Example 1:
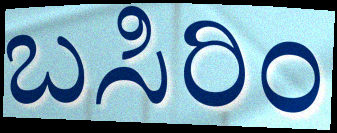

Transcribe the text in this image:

ಬಸಿರಿಂ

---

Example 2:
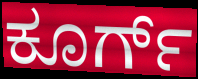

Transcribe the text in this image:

ಕೂರ್ಗ್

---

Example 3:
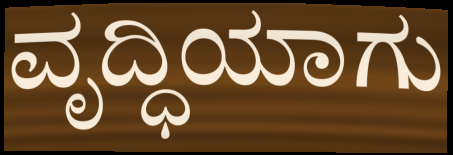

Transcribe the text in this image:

ವೃದ್ಧಿಯಾಗು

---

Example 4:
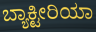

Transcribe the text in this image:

ಬ್ಯಾಕ್ಟೀರಿಯಾ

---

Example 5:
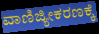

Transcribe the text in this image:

ವಾಣಿಜ್ಯೀಕರಣಕ್ಕೆ